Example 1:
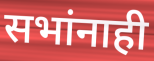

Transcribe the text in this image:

सभांनाही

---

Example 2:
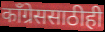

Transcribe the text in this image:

काँग्रेससाठीही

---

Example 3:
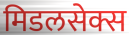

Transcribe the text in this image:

मिडलसेक्स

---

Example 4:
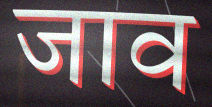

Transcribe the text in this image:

जाव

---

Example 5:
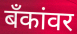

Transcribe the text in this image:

बँकांवर